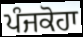
ਪੰਜਕੋਹਾ